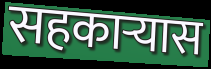
सहकार्‍यास